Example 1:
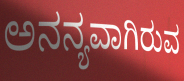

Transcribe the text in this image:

ಅನನ್ಯವಾಗಿರುವ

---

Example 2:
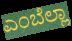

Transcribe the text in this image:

ಎಂಬೆಲ್ಲಾ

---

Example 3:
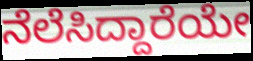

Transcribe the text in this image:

ನೆಲೆಸಿದ್ದಾರೆಯೇ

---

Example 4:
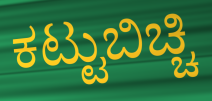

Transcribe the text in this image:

ಕಟ್ಟುಬಿಚ್ಚಿ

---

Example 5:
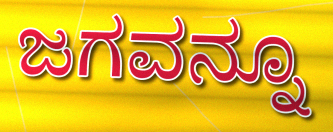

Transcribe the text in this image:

ಜಗವನ್ನೂ